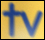
tv